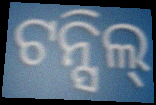
ଟନ୍ସିଲ୍